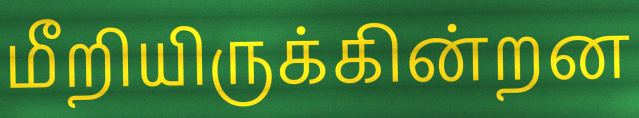
மீறியிருக்கின்றன